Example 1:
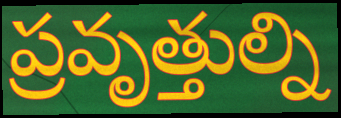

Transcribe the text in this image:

ప్రవృత్తుల్ని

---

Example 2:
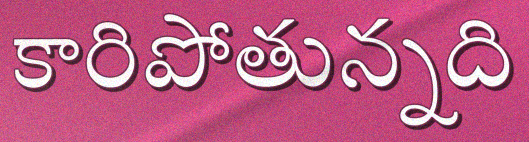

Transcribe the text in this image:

కారిపోతున్నది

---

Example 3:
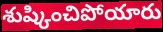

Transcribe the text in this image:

శుష్కించిపోయారు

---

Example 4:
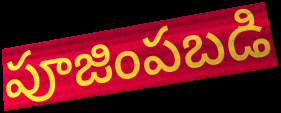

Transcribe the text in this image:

పూజింపబడి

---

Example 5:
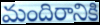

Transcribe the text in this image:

మందిరానికి